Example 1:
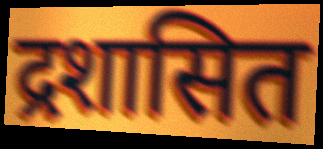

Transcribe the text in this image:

द्रशासित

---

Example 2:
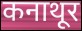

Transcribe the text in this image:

कनाथूर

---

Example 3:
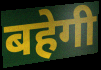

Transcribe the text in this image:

बहेगी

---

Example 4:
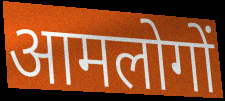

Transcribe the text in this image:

आमलोगों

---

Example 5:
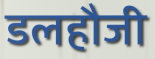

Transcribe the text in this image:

डलहौजी